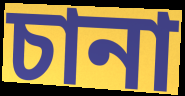
চানা